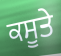
ਕਸੂਤੇ